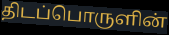
திடப்பொருளின்